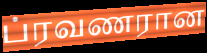
ப்ரவணரான